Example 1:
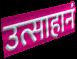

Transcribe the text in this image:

उत्साहानं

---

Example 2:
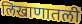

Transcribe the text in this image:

लिखाणातली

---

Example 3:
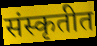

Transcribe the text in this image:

संस्कृतीत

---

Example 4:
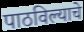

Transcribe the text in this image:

पाठविल्याचे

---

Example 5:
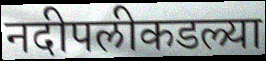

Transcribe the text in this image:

नदीपलीकडल्या